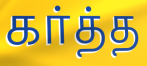
கர்த்த